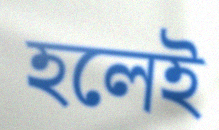
হলেই